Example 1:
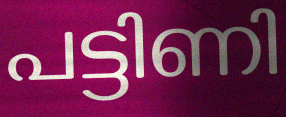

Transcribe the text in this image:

പട്ടിണി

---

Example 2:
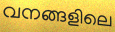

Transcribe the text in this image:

വനങ്ങളിലെ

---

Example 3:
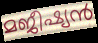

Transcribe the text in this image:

മജീഷ്യൻ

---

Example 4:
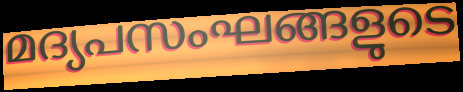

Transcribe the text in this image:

മദ്യപസംഘങ്ങളുടെ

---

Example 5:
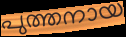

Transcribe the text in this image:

പുത്തനായ